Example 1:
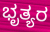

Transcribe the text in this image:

ಭೃತ್ಯರ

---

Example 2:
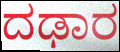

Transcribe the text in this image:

ದಢಾರ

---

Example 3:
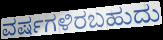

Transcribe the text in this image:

ವರ್ಷಗಳಿರಬಹುದು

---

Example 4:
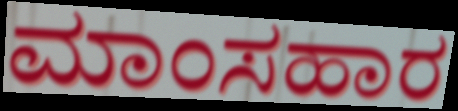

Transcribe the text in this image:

ಮಾಂಸಹಾರ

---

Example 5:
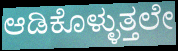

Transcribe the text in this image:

ಆಡಿಕೊಳ್ಳುತ್ತಲೇ